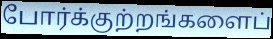
போர்க்குற்றங்களைப்